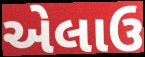
એલાઉ